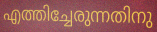
എത്തിച്ചേരുന്നതിനു